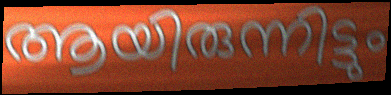
ആയിരുന്നിട്ടും